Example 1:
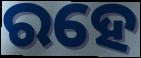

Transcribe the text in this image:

ରହେ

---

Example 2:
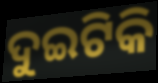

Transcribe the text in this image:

ଦୁଇଟିକି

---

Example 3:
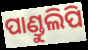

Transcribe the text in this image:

ପାଣ୍ଡୁଲିପି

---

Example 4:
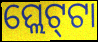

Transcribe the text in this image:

ପ୍ଲେଟ୍‍ଟା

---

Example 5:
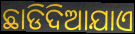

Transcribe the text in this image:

ଛାଡିଦିଆଯାଏ